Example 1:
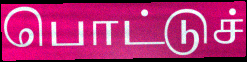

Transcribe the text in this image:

பொட்டுச்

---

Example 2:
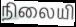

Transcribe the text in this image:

நிலையி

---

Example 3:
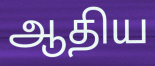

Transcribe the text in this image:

ஆதிய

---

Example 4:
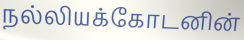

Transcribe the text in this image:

நல்லியக்கோடனின்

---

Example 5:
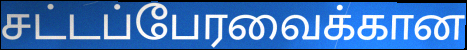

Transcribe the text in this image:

சட்டப்பேரவைக்கான